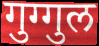
गुग्गुल